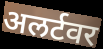
अलर्टवर